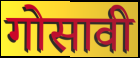
गोसावी